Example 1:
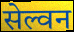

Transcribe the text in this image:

सेल्वन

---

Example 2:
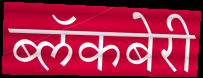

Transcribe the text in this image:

ब्लॅकबेरी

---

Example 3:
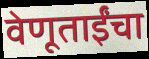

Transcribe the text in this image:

वेणूताईंचा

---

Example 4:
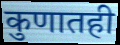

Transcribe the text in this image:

कुणातही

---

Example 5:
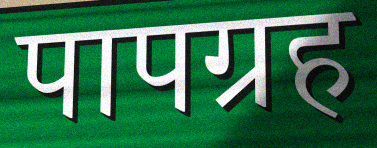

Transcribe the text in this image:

पापग्रह